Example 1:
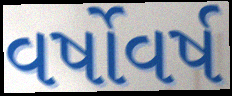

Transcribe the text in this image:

વર્ષોવર્ષ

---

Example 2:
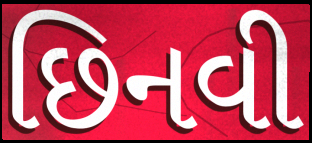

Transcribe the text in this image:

છિનવી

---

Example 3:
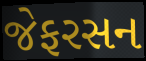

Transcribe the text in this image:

જેફરસન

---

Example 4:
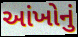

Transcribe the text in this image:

આંખોનું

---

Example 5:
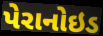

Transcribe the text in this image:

પેરાનોઇડ